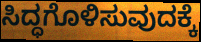
ಸಿದ್ಧಗೊಳಿಸುವುದಕ್ಕೆ